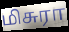
மிசுரா